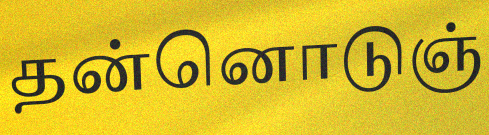
தன்னொடுஞ்